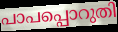
പാപപ്പൊറുതി